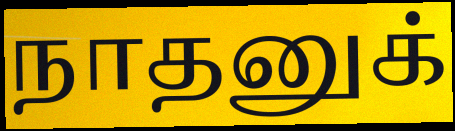
நாதனுக்